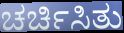
ಚರ್ಚಿಸಿತು